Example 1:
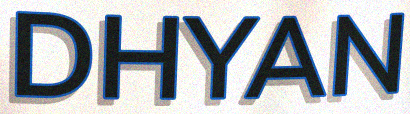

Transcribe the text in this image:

DHYAN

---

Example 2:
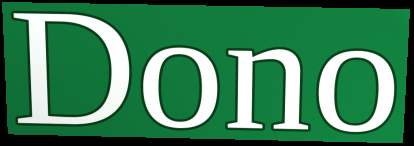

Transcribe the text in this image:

Dono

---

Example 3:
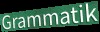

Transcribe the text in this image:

Grammatik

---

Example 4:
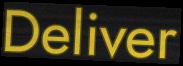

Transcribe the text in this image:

Deliver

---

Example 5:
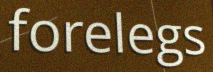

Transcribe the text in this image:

forelegs